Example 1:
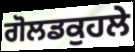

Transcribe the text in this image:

ਗੋਲਡਕੁਹਲੇ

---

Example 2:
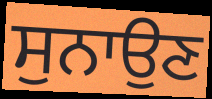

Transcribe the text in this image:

ਸੁਨਾਉਣ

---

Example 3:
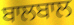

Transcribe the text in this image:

ਬਾਲਬਾਲ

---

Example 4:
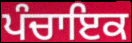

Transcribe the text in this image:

ਪੰਚਾਇਕ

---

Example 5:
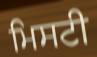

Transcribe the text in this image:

ਮਿਸਟੀ